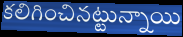
కలిగించినట్టున్నాయి